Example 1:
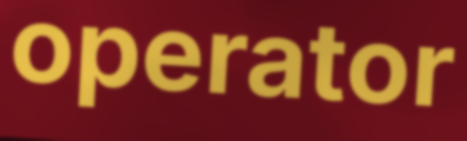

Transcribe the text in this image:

operator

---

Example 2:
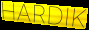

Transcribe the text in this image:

HARDIK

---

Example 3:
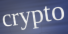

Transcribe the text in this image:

crypto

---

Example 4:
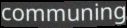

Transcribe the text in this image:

communing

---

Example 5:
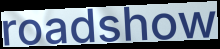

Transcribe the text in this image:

roadshow